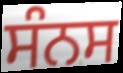
ਸੰਨਸ